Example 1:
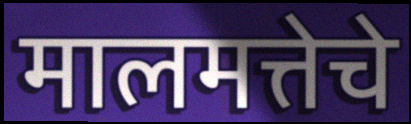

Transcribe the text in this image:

मालमत्तेचे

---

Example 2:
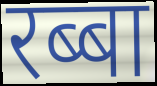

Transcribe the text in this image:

रब्बा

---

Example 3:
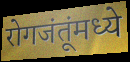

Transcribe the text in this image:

रोगजंतूंमध्ये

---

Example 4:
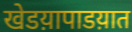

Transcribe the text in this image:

खेडय़ापाडय़ात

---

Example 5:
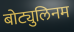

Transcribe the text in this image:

बोट्युलिनम